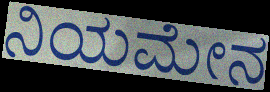
ನಿಯಮೇನ